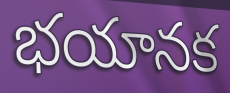
భయానక